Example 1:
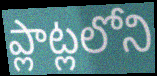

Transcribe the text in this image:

ప్లాట్లలోని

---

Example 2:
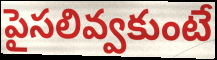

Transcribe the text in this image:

పైసలివ్వకుంటే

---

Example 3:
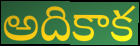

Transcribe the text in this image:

అదికాక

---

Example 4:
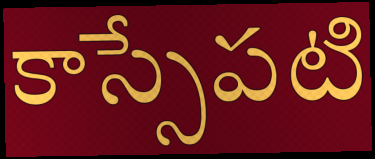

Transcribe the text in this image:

కాస్సేపటి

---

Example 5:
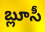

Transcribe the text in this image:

బ్లూసీ